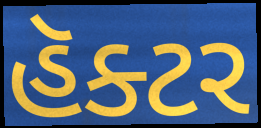
હૅક્ટર